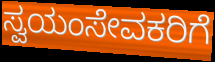
ಸ್ವಯಂಸೇವಕರಿಗೆ